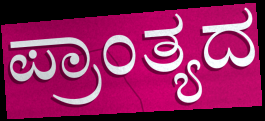
ಪ್ರಾಂತ್ಯದ